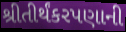
શ્રીતીર્થંકરપણાની